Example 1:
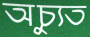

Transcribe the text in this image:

অচ্যুত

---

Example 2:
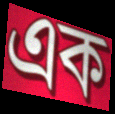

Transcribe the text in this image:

এক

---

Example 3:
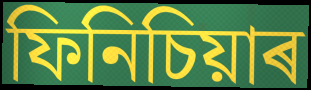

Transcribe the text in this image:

ফিনিচিয়াৰ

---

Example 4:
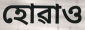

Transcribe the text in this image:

হোৱাও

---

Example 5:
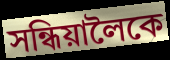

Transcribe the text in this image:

সন্ধিয়ালৈকে